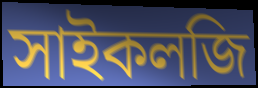
সাইকলজি